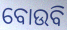
ବୋଉବି